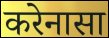
करेनासा